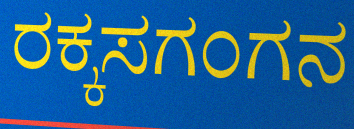
ರಕ್ಕಸಗಂಗನ